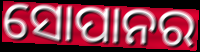
ସୋପାନର